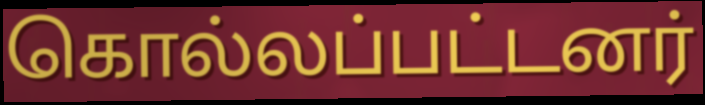
கொல்லப்பட்டனர்